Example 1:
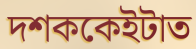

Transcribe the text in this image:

দশককেইটাত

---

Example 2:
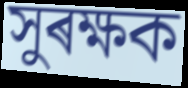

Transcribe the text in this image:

সুৰক্ষক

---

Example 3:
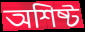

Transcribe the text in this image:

অশিষ্ট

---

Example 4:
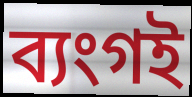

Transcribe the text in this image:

ব্যংগই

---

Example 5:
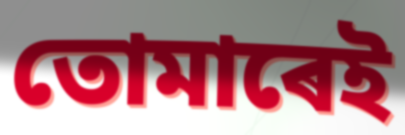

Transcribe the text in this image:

তোমাৰেই